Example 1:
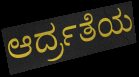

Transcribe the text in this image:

ಆರ್ದ್ರತೆಯ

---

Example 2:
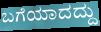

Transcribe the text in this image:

ಬಗೆಯಾದದ್ದು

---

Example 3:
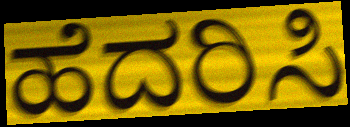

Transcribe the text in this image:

ಹೆದರಿಸಿ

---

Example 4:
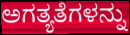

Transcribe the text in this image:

ಅಗತ್ಯತೆಗಳನ್ನು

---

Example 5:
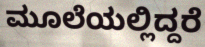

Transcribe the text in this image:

ಮೂಲೆಯಲ್ಲಿದ್ದರೆ